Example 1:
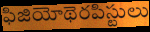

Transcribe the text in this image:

ఫిజియోథెరపిస్టులు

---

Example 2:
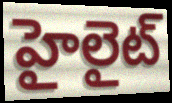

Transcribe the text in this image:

హైలైట్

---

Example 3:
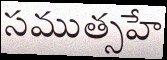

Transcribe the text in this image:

సముత్సహే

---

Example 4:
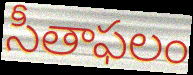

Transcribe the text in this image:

సీతాఫలం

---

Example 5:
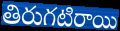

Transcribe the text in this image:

తిరుగటిరాయి